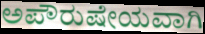
ಅಪೌರುಷೇಯವಾಗಿ